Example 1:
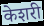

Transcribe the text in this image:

केशरी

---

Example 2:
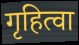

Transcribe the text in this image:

गृहित्वा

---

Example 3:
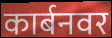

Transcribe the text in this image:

कार्बनवर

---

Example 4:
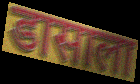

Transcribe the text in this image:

डासाला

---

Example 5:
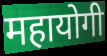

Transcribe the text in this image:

महायोगी